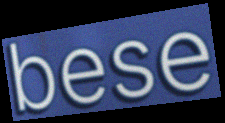
bese